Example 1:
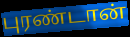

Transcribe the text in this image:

புரண்டான்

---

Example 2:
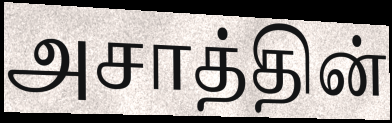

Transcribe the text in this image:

அசாத்தின்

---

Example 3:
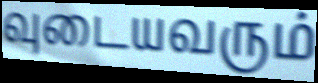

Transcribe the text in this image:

வுடையவரும்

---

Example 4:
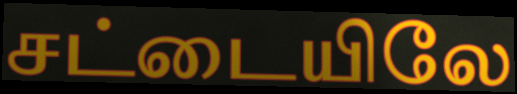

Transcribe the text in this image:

சட்டையிலே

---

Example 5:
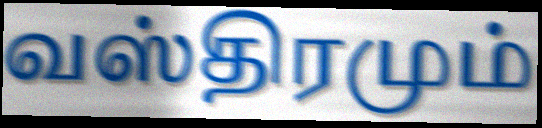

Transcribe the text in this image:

வஸ்திரமும்